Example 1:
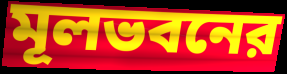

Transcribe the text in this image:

মূলভবনের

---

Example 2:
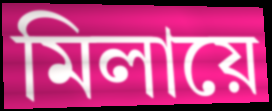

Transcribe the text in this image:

মিলায়ে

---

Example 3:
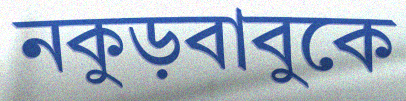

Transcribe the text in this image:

নকুড়বাবুকে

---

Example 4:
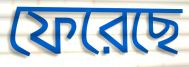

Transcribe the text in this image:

ফেরেছে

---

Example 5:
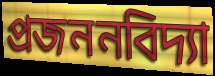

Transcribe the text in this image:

প্রজননবিদ্যা